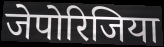
जेपोरिजिया